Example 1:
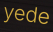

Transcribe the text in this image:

yede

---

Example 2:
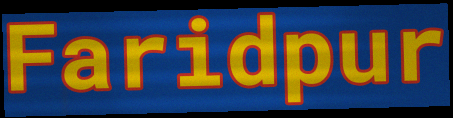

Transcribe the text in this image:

Faridpur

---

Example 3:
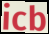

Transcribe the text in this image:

icb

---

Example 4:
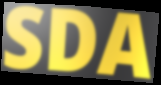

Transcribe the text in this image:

SDA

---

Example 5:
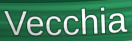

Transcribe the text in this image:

Vecchia